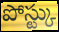
పోస్ట్కు